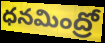
ధనమింద్రో